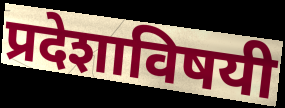
प्रदेशाविषयी